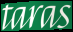
taras